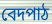
বেদপাঠ